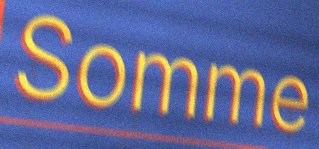
Somme